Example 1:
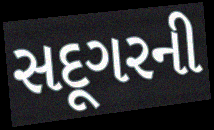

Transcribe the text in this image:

સદૂગરની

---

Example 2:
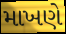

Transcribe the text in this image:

માખણે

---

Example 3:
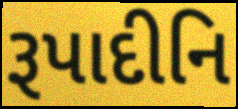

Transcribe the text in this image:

રૂપાદીનિ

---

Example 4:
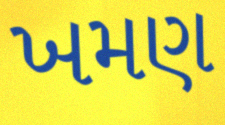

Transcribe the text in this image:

ખમણ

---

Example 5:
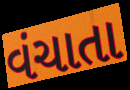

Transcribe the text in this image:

વંચાતા